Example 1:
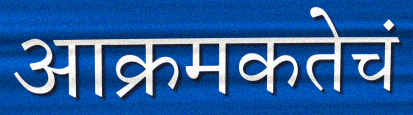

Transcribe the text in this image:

आक्रमकतेचं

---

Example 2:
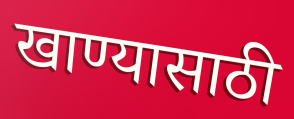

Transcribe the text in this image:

खाण्यासाठी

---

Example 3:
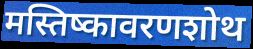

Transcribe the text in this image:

मस्तिष्कावरणशोथ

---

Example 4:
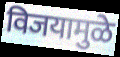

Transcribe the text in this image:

विजयामुळे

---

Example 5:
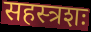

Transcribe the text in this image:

सहस्त्रशः